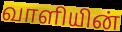
வாளியின்